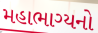
મહાભાગ્યનો